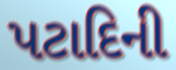
પટાદિની